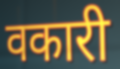
वकारी